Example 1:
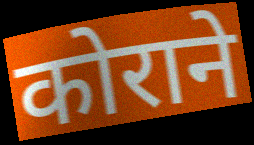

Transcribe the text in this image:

कोराने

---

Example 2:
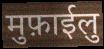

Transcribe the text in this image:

मुफ़ाईलु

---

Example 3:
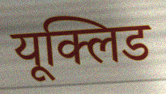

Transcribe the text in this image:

यूक्लिड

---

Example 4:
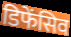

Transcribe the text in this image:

डिफेंसिव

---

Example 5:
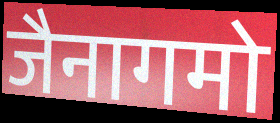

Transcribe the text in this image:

जैनागमो